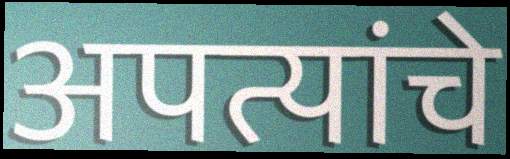
अपत्यांचे